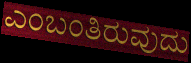
ಎಂಬಂತಿರುವುದು